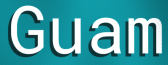
Guam